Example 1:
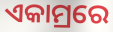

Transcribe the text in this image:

ଏକାମ୍ରରେ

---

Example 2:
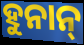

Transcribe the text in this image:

ହୁନାନ୍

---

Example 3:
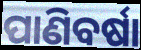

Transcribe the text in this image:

ପାଣିବର୍ଷା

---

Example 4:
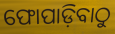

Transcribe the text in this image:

ଫୋପାଡ଼ିବାଠୁ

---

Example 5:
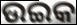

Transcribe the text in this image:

ଉଇକ